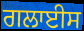
ਗਲਾਈਸ